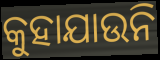
କୁହାଯାଉନି